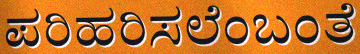
ಪರಿಹರಿಸಲೆಂಬಂತೆ